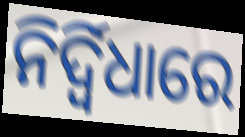
ନିର୍ଦ୍ୱିଧାରେ